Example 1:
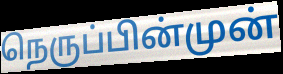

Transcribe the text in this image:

நெருப்பின்முன்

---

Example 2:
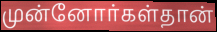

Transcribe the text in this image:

முன்னோர்கள்தான்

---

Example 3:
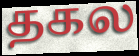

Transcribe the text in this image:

தகல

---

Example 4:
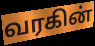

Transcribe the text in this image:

வரகின்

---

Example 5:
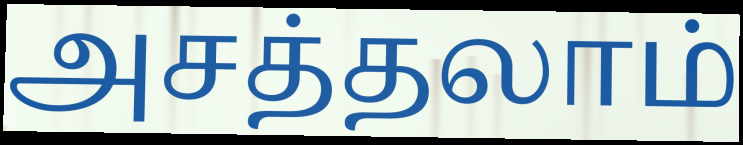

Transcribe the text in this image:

அசத்தலாம்